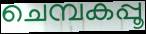
ചെമ്പകപ്പൂ